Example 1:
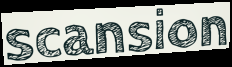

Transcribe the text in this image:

scansion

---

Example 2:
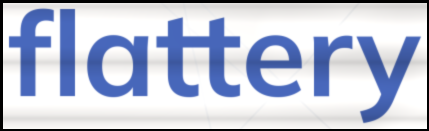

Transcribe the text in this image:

flattery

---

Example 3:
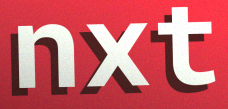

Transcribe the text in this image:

nxt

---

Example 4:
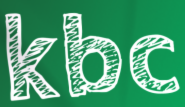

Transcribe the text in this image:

kbc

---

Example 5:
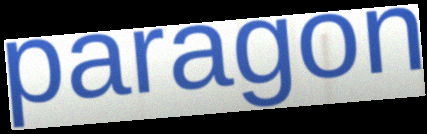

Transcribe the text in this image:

paragon